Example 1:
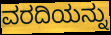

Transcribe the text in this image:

ವರದಿಯನ್ನು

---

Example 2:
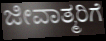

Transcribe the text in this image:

ಜೀವಾತ್ಮರಿಗೆ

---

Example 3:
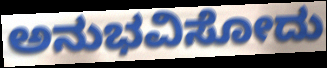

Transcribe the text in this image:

ಅನುಭವಿಸೋದು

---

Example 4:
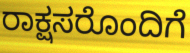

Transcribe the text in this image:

ರಾಕ್ಷಸರೊಂದಿಗೆ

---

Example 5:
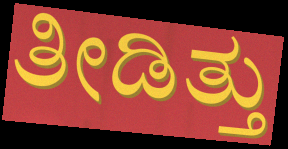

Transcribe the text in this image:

ತೀಡಿತ್ತು